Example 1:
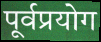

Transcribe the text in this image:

पूर्वप्रयोग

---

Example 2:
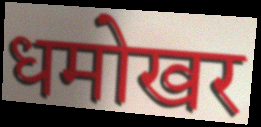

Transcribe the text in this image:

धमोखर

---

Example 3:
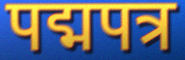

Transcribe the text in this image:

पद्मपत्र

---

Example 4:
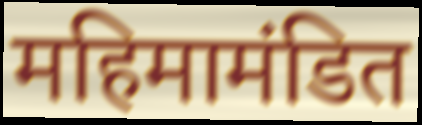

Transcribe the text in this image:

महिमामंडित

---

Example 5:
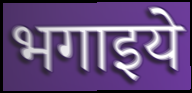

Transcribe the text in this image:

भगाइये